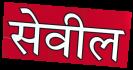
सेवील